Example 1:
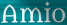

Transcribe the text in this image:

Amio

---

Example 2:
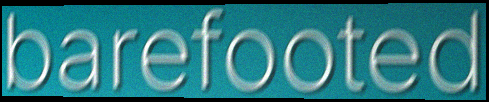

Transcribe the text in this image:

barefooted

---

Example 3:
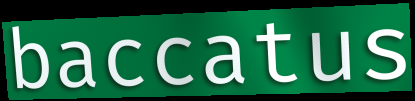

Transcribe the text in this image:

baccatus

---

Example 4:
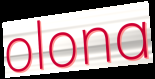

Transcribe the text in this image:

olona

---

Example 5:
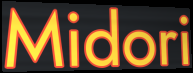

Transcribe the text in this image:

Midori